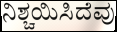
ನಿಶ್ಚಯಿಸಿದೆವು